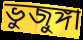
ভুজুঙ্গা